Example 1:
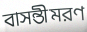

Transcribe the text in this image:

বাসন্তীমরণ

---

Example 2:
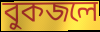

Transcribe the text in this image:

বুকজলে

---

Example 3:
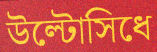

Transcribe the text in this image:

উল্টোসিধে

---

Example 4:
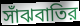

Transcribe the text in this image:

সাঁঝবাতির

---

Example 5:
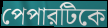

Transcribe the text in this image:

পেপারটিকে